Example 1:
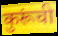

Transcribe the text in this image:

कुरूंची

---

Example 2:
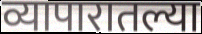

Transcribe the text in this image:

व्यापारातल्या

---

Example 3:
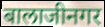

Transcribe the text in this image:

बालाजीनगर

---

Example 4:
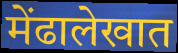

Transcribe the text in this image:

मेंढालेखात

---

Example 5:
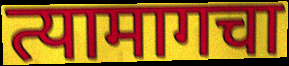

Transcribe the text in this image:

त्यामागचा